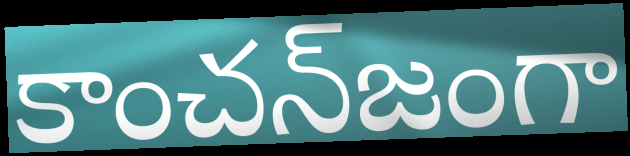
కాంచన్‌జంగా